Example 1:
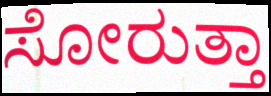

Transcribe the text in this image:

ಸೋರುತ್ತಾ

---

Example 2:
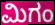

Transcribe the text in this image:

ಮಿಗಂ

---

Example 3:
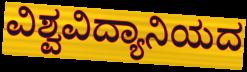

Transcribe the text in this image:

ವಿಶ್ವವಿದ್ಯಾನಿಯದ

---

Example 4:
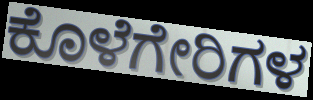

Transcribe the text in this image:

ಕೊಳೆಗೇರಿಗಳ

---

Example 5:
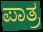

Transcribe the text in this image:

ಪಾತ್ರ